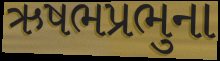
ઋષભપ્રભુના